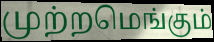
முற்றமெங்கும்